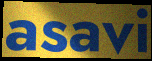
asavi